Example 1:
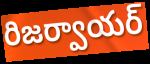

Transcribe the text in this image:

రిజర్వాయర్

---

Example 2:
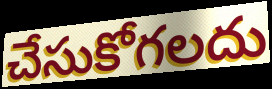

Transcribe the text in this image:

చేసుకోగలదు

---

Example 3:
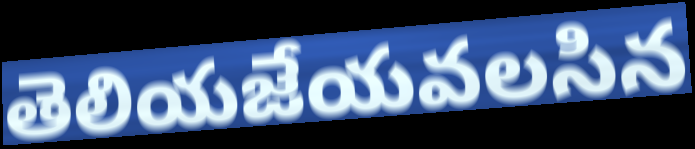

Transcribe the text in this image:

తెలియజేయవలసిన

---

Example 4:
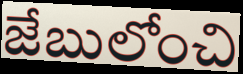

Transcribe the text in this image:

జేబులోంచి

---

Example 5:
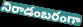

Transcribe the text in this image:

నిరాడంబరంగా